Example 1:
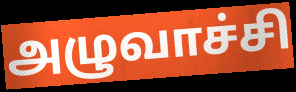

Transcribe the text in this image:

அழுவாச்சி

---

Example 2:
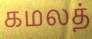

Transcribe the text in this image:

கமலத்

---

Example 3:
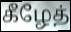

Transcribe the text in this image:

கீழேத்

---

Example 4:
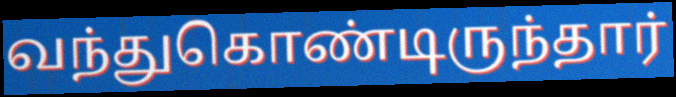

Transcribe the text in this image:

வந்துகொண்டிருந்தார்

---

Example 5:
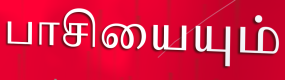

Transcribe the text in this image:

பாசியையும்